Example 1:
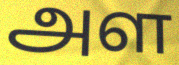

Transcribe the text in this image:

அள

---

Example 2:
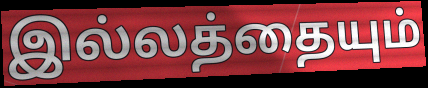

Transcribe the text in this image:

இல்லத்தையும்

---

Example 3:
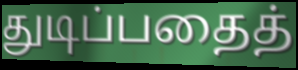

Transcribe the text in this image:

துடிப்பதைத்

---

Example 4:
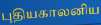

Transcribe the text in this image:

புதியகாலனிய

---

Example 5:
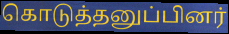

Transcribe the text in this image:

கொடுத்தனுப்பினர்